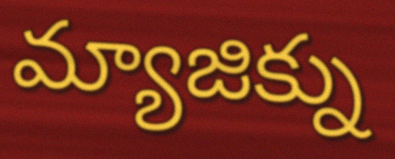
మ్యాజిక్ను